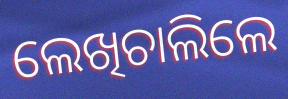
ଲେଖିଚାଲିଲେ